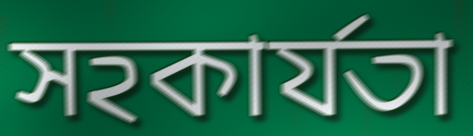
সহকাৰ্যতা